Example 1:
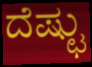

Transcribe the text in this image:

ದೆಷ್ಟು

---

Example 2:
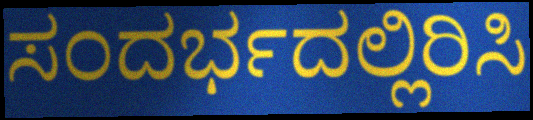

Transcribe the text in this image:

ಸಂದರ್ಭದಲ್ಲಿರಿಸಿ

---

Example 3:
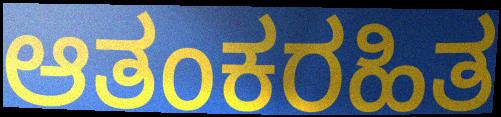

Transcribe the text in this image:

ಆತಂಕರಹಿತ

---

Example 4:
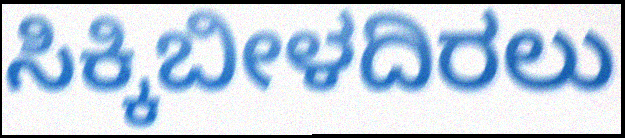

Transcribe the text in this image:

ಸಿಕ್ಕಿಬೀಳದಿರಲು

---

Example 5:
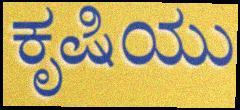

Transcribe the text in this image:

ಕೃಷಿಯು